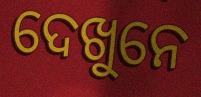
ଦେଖୁନେ